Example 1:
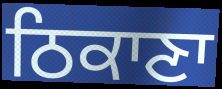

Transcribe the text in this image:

ਠਿਕਾਣਾ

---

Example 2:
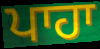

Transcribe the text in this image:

ਪਾਹਾ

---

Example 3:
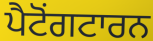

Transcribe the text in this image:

ਪੈਟੋਂਗਟਾਰਨ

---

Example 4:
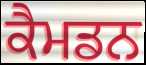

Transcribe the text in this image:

ਕੈਮਡਨ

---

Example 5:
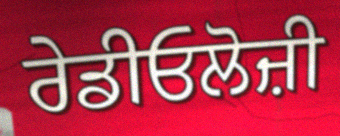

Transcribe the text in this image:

ਰੇਡੀਓਲੋਜ਼ੀ